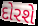
દોરશે